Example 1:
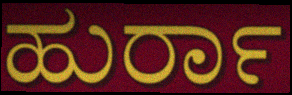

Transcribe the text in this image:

ಹುರ್ರಾ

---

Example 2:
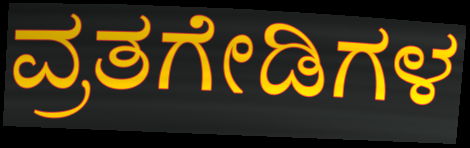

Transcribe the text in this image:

ವ್ರತಗೇಡಿಗಳ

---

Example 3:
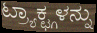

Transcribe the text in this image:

ಟ್ರ್ಯಾಕ್ಟ್ಗಳನ್ನು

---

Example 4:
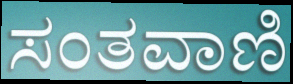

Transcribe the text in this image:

ಸಂತವಾಣಿ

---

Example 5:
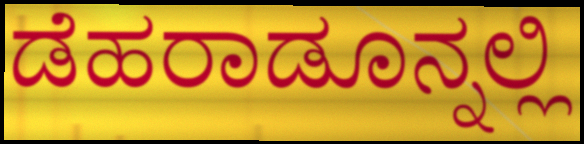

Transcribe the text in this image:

ಡೆಹರಾಡೂನ್ನಲ್ಲಿ